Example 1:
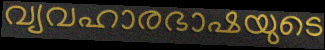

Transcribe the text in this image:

വ്യവഹാരഭാഷയുടെ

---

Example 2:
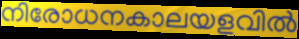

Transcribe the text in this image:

നിരോധനകാലയളവിൽ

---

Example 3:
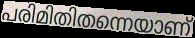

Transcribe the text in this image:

പരിമിതിതന്നെയാണ്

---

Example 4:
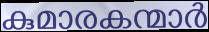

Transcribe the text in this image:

കുമാരകന്മാർ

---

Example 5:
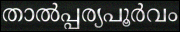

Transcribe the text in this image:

താൽപ്പര്യപൂർവം